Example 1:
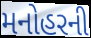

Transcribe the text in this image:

મનોહરની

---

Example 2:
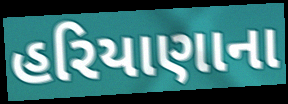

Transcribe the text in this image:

હરિયાણાના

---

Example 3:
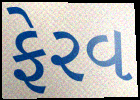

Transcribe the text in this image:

ફેરવ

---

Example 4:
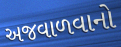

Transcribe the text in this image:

અજવાળવાનો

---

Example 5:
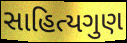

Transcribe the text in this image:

સાહિત્યગુણ